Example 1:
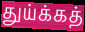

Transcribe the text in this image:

துய்க்கத்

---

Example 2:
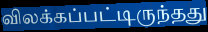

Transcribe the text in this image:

விலக்கப்பட்டிருந்தது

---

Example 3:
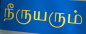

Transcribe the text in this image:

நீருயரும்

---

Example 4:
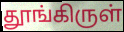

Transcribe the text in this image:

தூங்கிருள்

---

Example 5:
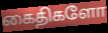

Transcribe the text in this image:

கைதிகளோ